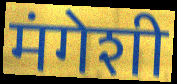
मंगेशी